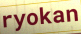
ryokan